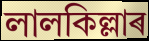
লালকিল্লাৰ